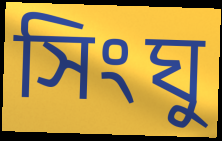
সিংঘু